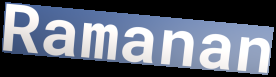
Ramanan